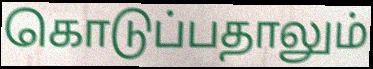
கொடுப்பதாலும்